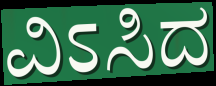
ವಿಽಸಿದ